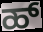
ಹ್